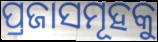
ପ୍ରଜାସମୂହକୁ